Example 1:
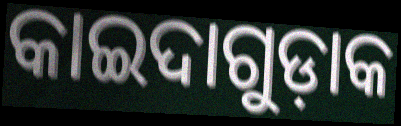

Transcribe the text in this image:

କାଇଦାଗୁଡ଼ାକ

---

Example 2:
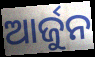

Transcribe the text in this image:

ଆର୍ଜୁନ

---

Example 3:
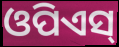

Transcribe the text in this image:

ଓପିଏସ୍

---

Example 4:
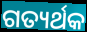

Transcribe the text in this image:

ଗତ୍ୟର୍ଥକ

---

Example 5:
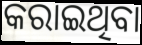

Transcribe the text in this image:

କରାଇଥିବା